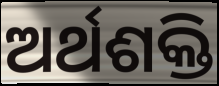
ଅର୍ଥଶକ୍ତି